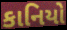
કાનિયો